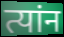
त्यांन